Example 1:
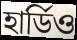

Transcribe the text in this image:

হার্ডিও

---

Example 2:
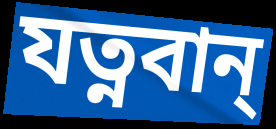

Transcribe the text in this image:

যত্নবান্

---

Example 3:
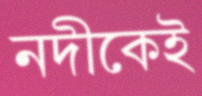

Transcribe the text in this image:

নদীকেই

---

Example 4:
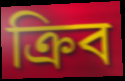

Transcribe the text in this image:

ক্রিব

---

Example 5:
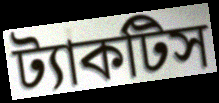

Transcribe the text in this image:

ট্যাকটিস